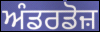
ਅੰਡਰਡੋਜ਼